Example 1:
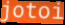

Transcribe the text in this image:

jotoi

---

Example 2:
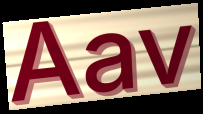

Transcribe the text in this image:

Aav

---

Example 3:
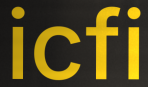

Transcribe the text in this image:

icfi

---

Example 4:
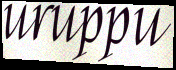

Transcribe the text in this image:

uruppu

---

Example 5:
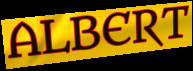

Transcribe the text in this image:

ALBERT